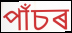
পাঁচৰ